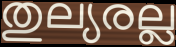
തുല്യരല്ല